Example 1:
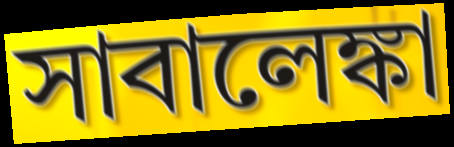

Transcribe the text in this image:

সাবালেঙ্কা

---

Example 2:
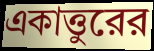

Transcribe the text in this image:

একাত্তুরের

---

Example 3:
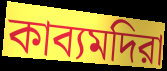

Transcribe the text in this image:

কাব্যমদিরা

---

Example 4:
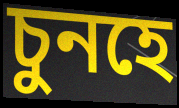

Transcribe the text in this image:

চুনহে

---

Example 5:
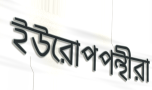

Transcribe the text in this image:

ইউরোপপন্থীরা